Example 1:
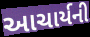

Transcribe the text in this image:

આચાર્યની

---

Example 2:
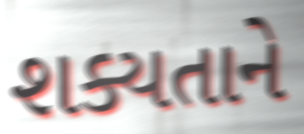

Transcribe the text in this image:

શક્યતાને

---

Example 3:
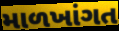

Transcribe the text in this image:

માળખાંગત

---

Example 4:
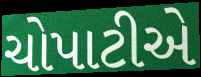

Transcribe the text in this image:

ચોપાટીએ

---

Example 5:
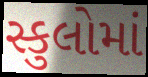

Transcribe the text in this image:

સ્કુલોમાં